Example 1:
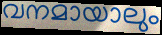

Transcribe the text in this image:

വനമായാലും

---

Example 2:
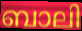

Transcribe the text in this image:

ബാലി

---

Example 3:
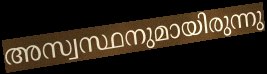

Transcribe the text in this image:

അസ്വസ്ഥനുമായിരുന്നു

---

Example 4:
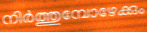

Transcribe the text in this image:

നിർത്തുമ്പോഴേക്കും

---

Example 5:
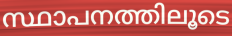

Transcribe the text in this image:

സ്ഥാപനത്തിലൂടെ